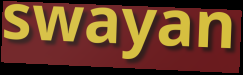
swayan